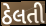
ઠેલતી